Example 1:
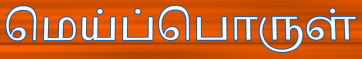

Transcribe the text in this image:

மெய்ப்பொருள்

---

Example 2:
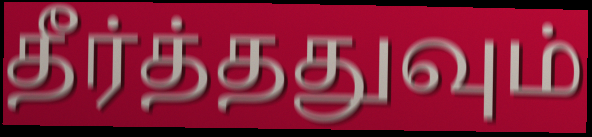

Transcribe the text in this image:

தீர்த்ததுவும்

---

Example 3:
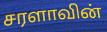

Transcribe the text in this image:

சரளாவின்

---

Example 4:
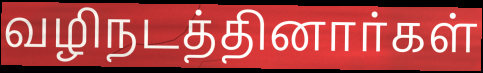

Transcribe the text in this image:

வழிநடத்தினார்கள்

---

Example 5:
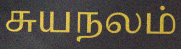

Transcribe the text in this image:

சுயநலம்